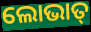
ଲୋଭାତ୍